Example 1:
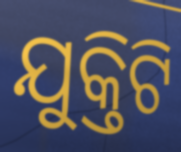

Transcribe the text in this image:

ଯୁକ୍ତିଟି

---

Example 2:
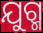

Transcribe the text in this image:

ଯୁଗ୍ମ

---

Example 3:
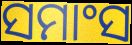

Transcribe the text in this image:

ସମାଂସ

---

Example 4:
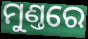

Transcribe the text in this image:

ମୁଣ୍ତରେ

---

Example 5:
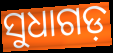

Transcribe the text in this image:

ସୁଧାଗଡ଼